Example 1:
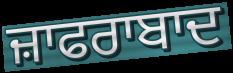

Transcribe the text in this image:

ਜ਼ਾਫਰਾਬਾਦ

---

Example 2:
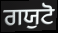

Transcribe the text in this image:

ਗਯੁਟੋ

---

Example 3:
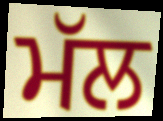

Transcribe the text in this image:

ਮੱਲ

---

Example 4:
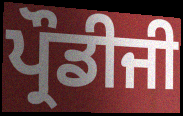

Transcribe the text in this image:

ਪ੍ਰੌਡੀਜੀ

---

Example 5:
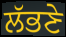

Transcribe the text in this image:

ਲੱਭਣੇ